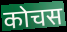
कोचस